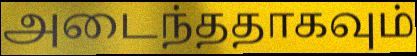
அடைந்ததாகவும்